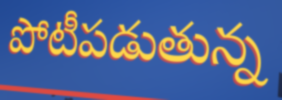
పోటీపడుతున్న